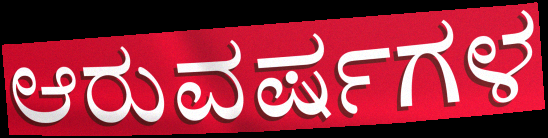
ಆರುವರ್ಷಗಳ